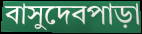
বাসুদেবপাড়া